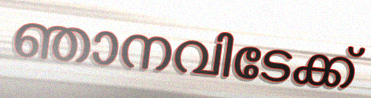
ഞാനവിടേക്ക്